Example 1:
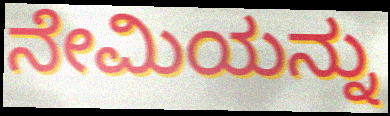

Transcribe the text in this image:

ನೇಮಿಯನ್ನು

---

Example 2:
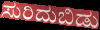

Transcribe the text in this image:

ಸುರಿದುಬಿಡು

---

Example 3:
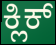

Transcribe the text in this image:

ಕ್ಲಿಕ್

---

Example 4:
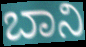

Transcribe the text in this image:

ಬಾನಿ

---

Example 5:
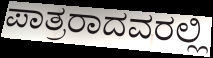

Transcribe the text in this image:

ಪಾತ್ರರಾದವರಲ್ಲಿ